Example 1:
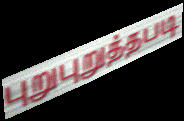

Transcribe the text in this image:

புறுபுறுத்தபடி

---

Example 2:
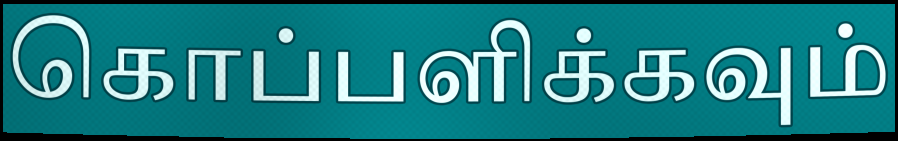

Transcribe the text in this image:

கொப்பளிக்கவும்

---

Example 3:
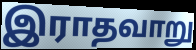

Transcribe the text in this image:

இராதவாறு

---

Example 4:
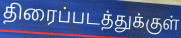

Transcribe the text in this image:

திரைப்படத்துக்குள்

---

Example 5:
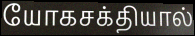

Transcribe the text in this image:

யோகசக்தியால்